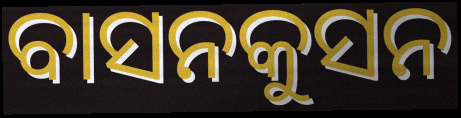
ବାସନକୁସନ